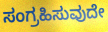
ಸಂಗ್ರಹಿಸುವುದೇ